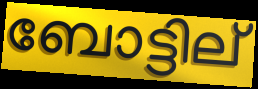
ബോട്ടില്